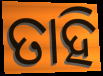
ତାହି